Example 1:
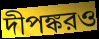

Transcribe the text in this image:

দীপঙ্করও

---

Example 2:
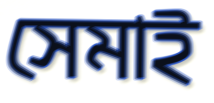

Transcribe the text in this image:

সেমাই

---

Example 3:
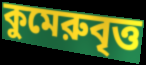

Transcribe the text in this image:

কুমেরুবৃত্ত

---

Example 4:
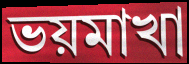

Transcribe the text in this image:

ভয়মাখা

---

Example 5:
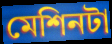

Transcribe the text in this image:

মেশিনটা